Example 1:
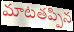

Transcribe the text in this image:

మాటతప్పిన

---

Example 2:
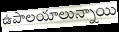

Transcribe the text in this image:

ఉపాలయాలున్నాయి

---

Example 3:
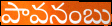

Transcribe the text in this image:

పావనంబు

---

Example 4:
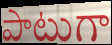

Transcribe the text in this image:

పాటుగా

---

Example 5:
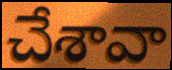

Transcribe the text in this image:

చేశావా